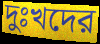
দুঃখদের